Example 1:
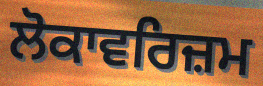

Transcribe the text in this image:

ਲੋਕਾਵਰਿਜ਼ਮ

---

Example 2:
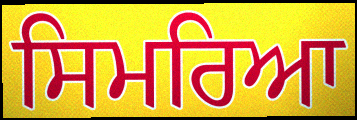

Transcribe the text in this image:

ਸਿਮਰਿਆ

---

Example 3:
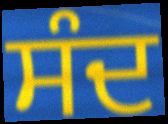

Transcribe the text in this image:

ਸੰਦ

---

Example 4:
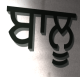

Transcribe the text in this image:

ਬਾਲੂ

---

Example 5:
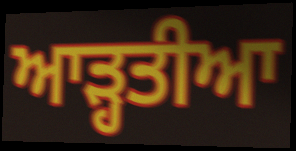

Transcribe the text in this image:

ਆੜ੍ਹਤੀਆ